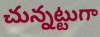
చున్నట్టుగా